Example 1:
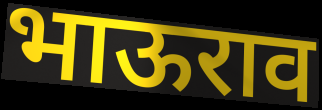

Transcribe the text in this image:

भाऊराव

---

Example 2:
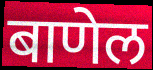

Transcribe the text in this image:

बाणेल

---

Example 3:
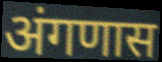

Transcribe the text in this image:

अंगणास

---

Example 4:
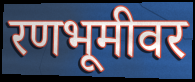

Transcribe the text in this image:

रणभूमीवर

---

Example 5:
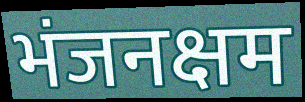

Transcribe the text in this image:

भंजनक्षम